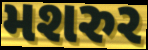
મશરુર